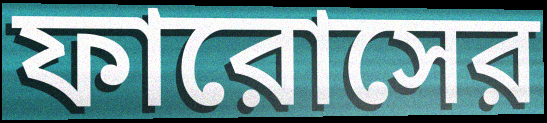
ফারোসের